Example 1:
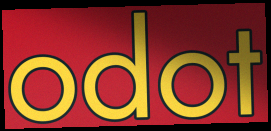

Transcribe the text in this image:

odot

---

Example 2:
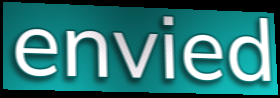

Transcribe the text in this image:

envied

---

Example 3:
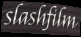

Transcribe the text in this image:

slashfilm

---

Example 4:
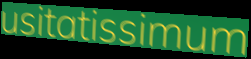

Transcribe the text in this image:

usitatissimum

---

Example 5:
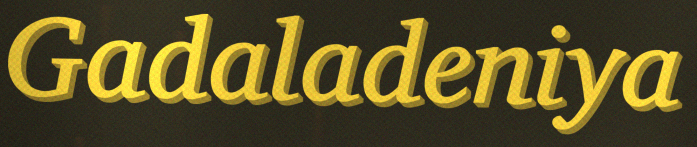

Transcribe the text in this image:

Gadaladeniya